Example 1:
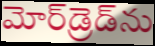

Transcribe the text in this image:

మోర్‌డ్రెడ్‌ను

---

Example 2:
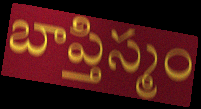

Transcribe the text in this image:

బాప్తిస్మం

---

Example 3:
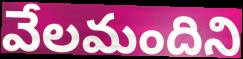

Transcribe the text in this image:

వేలమందిని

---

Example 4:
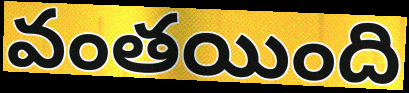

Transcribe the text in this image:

వంతయింది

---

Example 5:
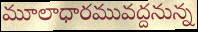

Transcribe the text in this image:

మూలాధారమువద్దనున్న